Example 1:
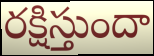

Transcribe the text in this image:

రక్షిస్తుందా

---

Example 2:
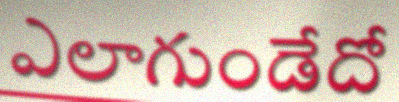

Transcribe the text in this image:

ఎలాగుండేదో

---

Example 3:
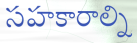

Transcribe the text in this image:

సహకారాల్ని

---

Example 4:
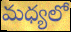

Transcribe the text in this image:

మధ్యలో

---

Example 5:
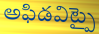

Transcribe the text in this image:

అఫిడవిట్పై